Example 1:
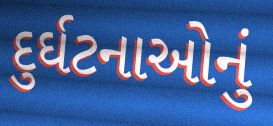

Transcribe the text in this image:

દુર્ઘટનાઓનું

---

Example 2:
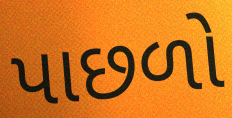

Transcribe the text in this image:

પાછળો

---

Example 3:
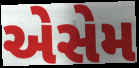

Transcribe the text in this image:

એસેમ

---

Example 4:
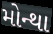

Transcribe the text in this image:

મોન્થા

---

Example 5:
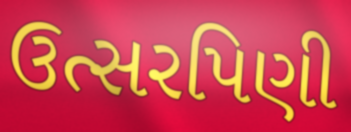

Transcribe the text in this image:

ઉત્સરપિણી